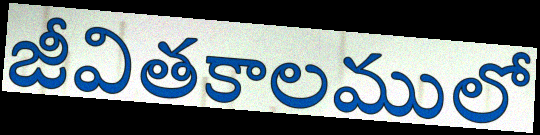
జీవితకాలములో